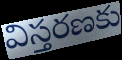
విస్తరణకు